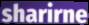
sharirne